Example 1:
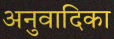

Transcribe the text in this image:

अनुवादिका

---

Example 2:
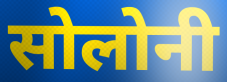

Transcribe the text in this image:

सोलोनी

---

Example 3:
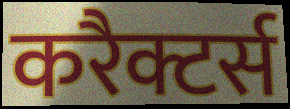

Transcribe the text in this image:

करैक्टर्स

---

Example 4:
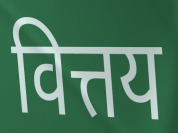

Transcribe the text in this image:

वित्तय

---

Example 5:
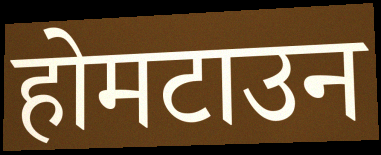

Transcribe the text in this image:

होमटाउन